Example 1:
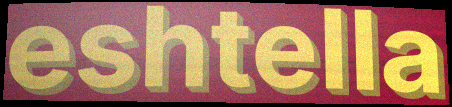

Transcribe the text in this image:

eshtella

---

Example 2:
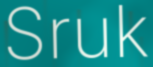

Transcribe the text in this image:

Sruk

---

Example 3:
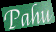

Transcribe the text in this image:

Pahu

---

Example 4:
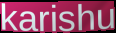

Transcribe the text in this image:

karishu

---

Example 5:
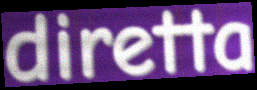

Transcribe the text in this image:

diretta